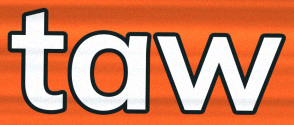
taw